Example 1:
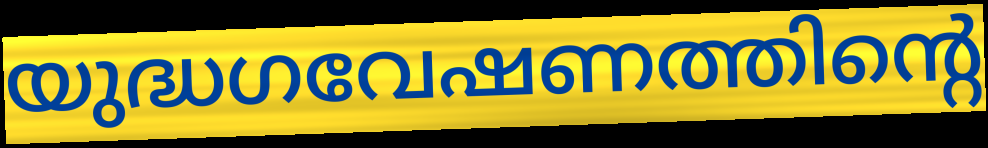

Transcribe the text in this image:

യുദ്ധഗവേഷണത്തിന്റെ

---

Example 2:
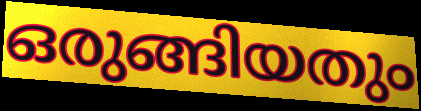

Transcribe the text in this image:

ഒരുങ്ങിയതും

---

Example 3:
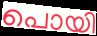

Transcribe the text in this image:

പൊയി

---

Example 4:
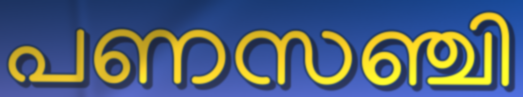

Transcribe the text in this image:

പണസഞ്ചി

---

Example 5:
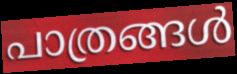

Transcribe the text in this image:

പാത്രങ്ങൾ